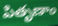
పితృణాం